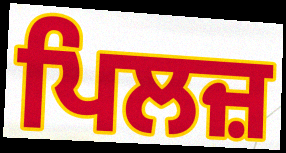
ਪਿਲਜ਼